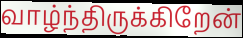
வாழ்ந்திருக்கிறேன்